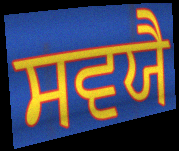
ਸਵਯੈ